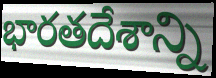
భారతదేశాన్ని